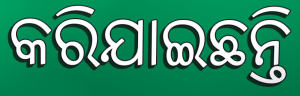
କରିଯାଇଛନ୍ତି